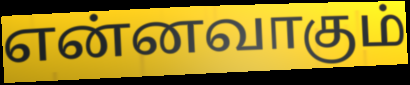
என்னவாகும்